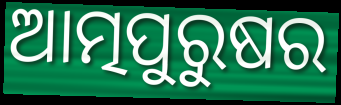
ଆତ୍ମପୁରୁଷର